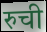
रुची